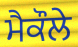
ਮੈਕੌਲੇ